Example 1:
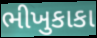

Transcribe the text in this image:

ભીખુકાકા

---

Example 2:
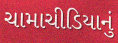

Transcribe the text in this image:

ચામાચીડિયાનું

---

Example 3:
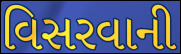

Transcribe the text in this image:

વિસરવાની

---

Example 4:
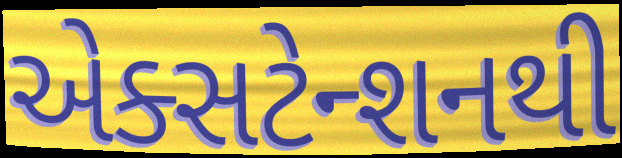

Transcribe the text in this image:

એક્સટેન્શનથી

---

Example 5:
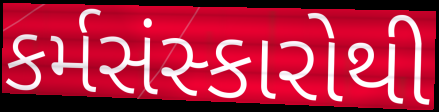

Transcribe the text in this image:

કર્મસંસ્કારોથી